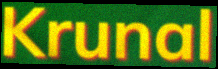
Krunal